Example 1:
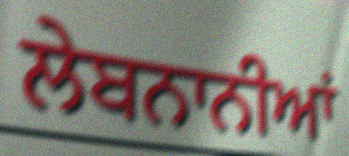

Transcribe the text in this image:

ਲੇਬਨਾਨੀਆਂ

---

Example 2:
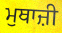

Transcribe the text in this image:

ਮੁਥਾਜ਼ੀ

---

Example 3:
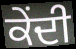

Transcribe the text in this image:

ਕੇਂਦੀ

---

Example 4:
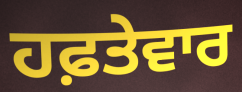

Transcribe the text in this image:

ਹਫ਼ਤੇਵਾਰ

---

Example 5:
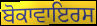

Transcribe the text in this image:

ਬੋਕਾਵਾਇਰਸ